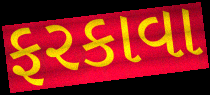
ફરકાવા